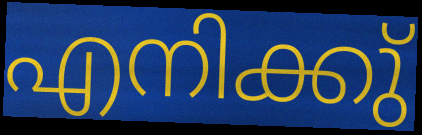
എനിക്കു്